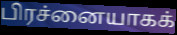
பிரச்னையாகக்